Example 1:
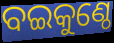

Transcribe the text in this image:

ବଇକୁଣ୍ଠେ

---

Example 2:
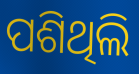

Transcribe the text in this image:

ପଶିଥିଲି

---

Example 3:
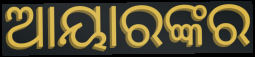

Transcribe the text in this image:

ଆୟାରଙ୍କର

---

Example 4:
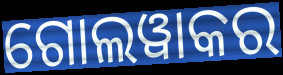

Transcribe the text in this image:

ଗୋଲୱାକର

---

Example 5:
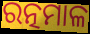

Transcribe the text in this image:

ରତ୍ନମାଳ